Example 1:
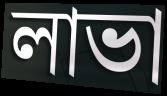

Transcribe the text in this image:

লাভা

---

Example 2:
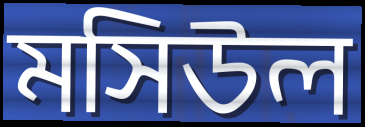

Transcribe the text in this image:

মসিউল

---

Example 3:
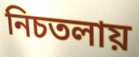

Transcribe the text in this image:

নিচতলায়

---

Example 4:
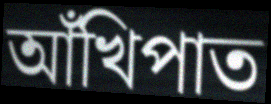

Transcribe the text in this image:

আঁখিপাত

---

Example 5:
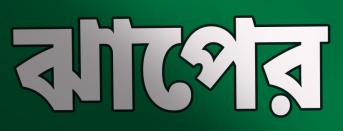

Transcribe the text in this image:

ঝাপের